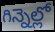
గిన్నెల్లో